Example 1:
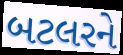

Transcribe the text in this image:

બટલરને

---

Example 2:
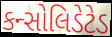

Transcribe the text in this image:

કન્સોલિડેટેડ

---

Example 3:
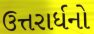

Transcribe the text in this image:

ઉત્તરાર્ધનો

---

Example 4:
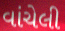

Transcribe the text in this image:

વાંચેલી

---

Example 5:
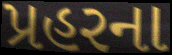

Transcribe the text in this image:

પ્રહરના